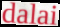
dalai